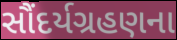
સૌંદર્યગ્રહણના